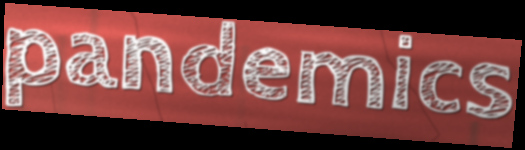
pandemics